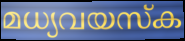
മധ്യവയസ്ക